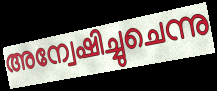
അന്വേഷിച്ചുചെന്നു